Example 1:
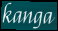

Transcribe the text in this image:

kanga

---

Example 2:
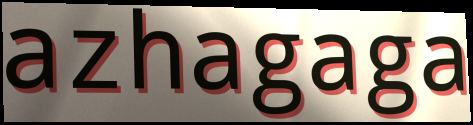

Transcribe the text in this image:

azhagaga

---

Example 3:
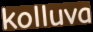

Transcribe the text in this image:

kolluva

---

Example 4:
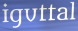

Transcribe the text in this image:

iguttal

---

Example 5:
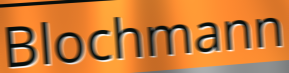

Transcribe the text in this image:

Blochmann